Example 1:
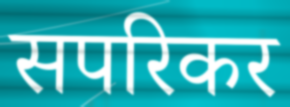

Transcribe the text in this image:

सपरिकर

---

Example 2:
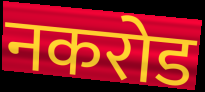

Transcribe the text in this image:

नकरोड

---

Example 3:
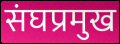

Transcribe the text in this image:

संघप्रमुख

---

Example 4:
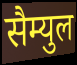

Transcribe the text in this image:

सैम्युल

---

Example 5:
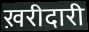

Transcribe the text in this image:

ख़रीदारी